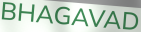
BHAGAVAD